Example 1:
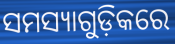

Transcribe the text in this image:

ସମସ୍ୟାଗୁଡ଼ିକରେ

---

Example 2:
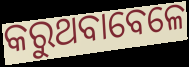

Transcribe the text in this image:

କରୁଥବାବେଳେ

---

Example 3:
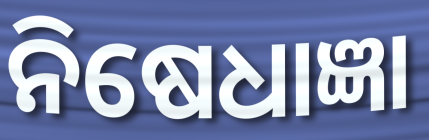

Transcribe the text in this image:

ନିଷେଧାଜ୍ଞା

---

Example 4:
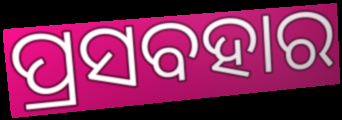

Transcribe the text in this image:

ପ୍ରସବହାର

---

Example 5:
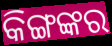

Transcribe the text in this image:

କିଙ୍ଗଙ୍କର